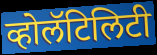
व्होलॅटिलिटी